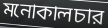
মনোকালচার